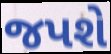
જપશે